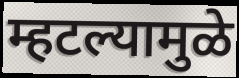
म्हटल्यामुळे